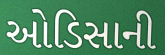
ઓડિસાની